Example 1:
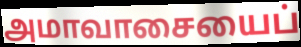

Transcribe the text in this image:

அமாவாசையைப்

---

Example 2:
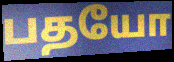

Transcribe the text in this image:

பதயோ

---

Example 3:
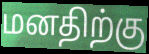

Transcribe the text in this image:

மனதிற்கு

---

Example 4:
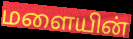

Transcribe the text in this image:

மளையின்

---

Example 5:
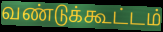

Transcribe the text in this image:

வண்டுக்கூட்டம்